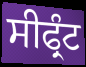
ਸੀਫ੍ਰੰਟ